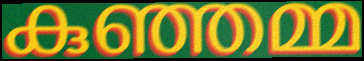
കുഞ്ഞമ്മ